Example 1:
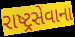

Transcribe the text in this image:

રાષ્ટ્રસેવાના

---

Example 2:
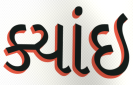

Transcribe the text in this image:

ક્યાંઇ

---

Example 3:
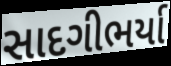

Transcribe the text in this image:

સાદગીભર્યા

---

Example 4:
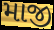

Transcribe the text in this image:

માજી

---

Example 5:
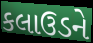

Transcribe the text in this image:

કલાઉડને